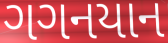
ગગનયાન